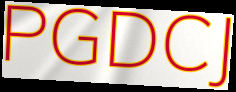
PGDCJ